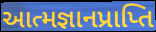
આત્મજ્ઞાનપ્રાપ્તિ